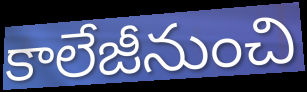
కాలేజీనుంచి